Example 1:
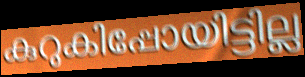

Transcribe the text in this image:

കുറുകിപ്പോയിട്ടില്ല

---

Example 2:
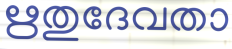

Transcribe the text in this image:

ഋതുദേവതാ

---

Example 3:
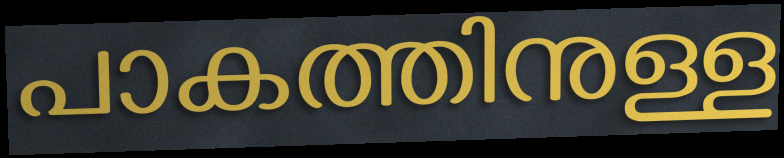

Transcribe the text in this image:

പാകത്തിനുള്ള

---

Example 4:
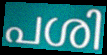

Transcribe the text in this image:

പശി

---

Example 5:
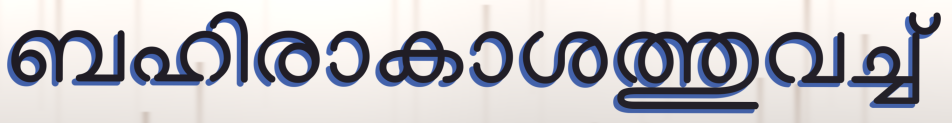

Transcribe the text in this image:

ബഹിരാകാശത്തുവച്ച്